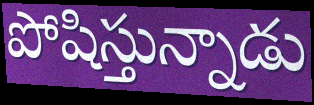
పోషిస్తున్నాడు